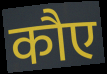
कौए